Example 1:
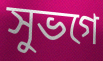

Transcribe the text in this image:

সুভগে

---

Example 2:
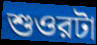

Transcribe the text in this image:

শুওরটা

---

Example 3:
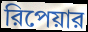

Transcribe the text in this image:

রিপেয়ার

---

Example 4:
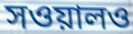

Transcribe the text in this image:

সওয়ালও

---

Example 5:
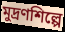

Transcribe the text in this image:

মুদ্রণশিল্পে